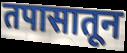
तपासातून